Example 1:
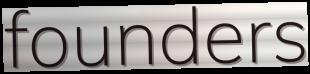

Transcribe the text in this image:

founders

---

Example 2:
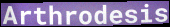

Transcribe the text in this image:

Arthrodesis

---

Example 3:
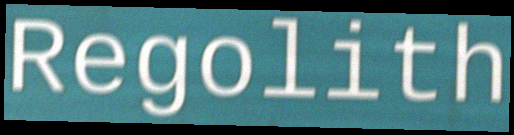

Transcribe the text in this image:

Regolith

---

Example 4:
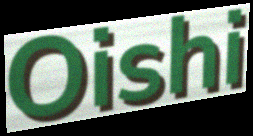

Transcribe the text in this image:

Oishi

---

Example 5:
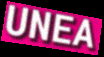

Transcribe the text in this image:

UNEA